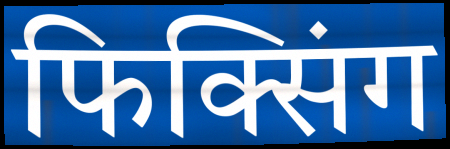
फिक्सिंग